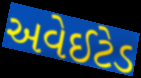
અવેઈટેડ